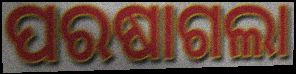
ପରଷାଗଲା